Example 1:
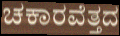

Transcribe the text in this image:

ಚಕಾರವೆತ್ತದ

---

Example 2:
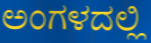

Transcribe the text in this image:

ಅಂಗಳದಲ್ಲಿ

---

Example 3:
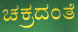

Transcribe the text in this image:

ಚಕ್ರದಂತೆ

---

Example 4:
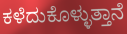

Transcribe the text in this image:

ಕಳೆದುಕೊಳ್ಳುತ್ತಾನೆ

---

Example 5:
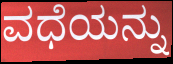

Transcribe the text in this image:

ವಧೆಯನ್ನು